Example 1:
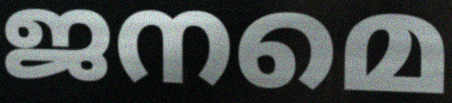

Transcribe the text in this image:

ജനമെ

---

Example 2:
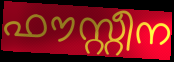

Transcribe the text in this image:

ഫൗസ്റ്റീന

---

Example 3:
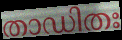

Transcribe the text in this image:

താഡിതഃ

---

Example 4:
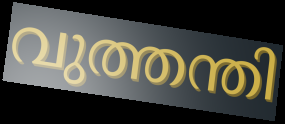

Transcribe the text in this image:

വുത്തന്തി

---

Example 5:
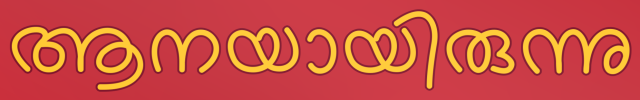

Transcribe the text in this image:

ആനയായിരുന്നു